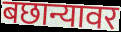
बछान्यावर